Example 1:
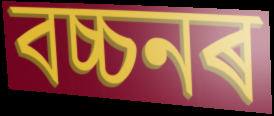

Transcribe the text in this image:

বচ্চনৰ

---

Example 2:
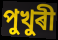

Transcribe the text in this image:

পুখুৰী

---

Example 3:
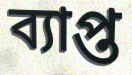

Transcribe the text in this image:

ব্যাপ্ত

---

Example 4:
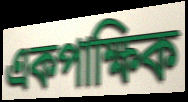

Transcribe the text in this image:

একপাক্ষিক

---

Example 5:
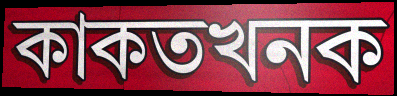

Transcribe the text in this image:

কাকতখনক